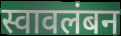
स्वावलंबन